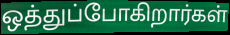
ஒத்துப்போகிறார்கள்